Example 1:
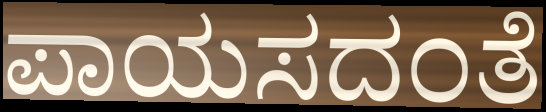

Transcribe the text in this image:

ಪಾಯಸದಂತೆ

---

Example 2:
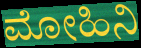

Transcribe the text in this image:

ಮೋಹಿನಿ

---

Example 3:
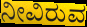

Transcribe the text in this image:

ನೀವಿರುವ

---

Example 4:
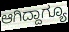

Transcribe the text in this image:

ಆಗಿದ್ದಾಗ್ಯೂ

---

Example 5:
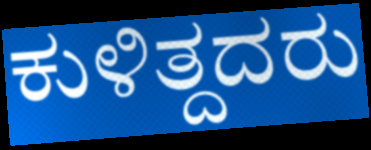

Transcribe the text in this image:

ಕುಳಿತ್ದದರು